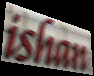
ishan